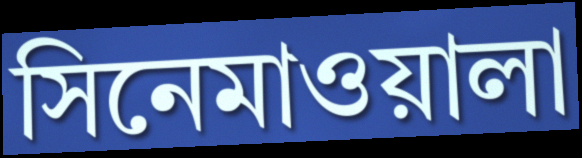
সিনেমাওয়ালা